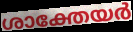
ശാക്തേയർ